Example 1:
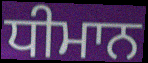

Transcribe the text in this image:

ਧੀਮਾਨ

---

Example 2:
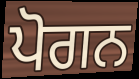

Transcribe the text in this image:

ਪੋਗਨ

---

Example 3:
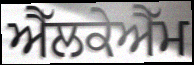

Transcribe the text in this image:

ਐੱਲਕੇਐੱਮ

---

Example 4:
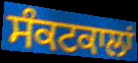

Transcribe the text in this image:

ਸੰਕਟਕਾਲਾਂ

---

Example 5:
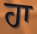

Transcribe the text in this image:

ਹਾ